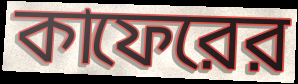
কাফেরের